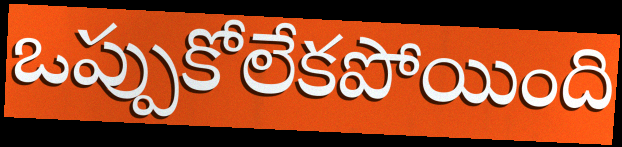
ఒప్పుకోలేకపోయింది